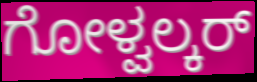
ಗೋಳ್ವಲ್ಕರ್